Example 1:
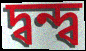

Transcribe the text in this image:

দ্বন্দ্ব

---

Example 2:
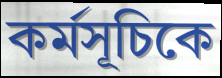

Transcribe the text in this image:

কর্মসূচিকে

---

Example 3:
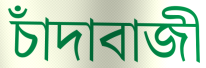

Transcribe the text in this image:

চাঁদাবাজী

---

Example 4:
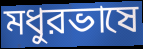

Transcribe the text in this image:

মধুরভাষে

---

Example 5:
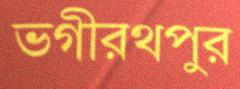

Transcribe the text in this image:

ভগীরথপুর